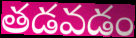
తడవడం